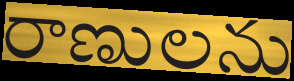
రాణులను